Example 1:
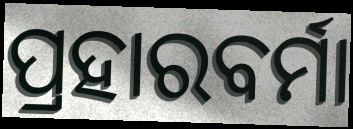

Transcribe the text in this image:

ପ୍ରହାରବର୍ମା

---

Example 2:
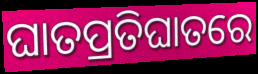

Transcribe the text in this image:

ଘାତପ୍ରତିଘାତରେ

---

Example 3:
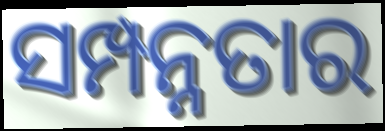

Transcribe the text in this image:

ସମ୍ପନ୍ନତାର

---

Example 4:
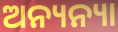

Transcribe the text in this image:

ଅନ୍ୟନ୍ୟା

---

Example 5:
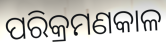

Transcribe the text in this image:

ପରିକ୍ରମଣକାଳ